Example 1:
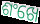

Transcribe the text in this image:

ଶଂଖେ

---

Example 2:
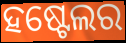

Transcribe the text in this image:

ହଷ୍ଟେଲର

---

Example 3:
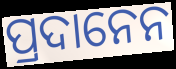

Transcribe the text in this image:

ପ୍ରଦାନେନ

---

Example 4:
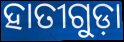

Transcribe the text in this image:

ହାତୀଗୁଡ଼ା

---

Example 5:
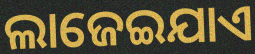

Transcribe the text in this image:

ଲାଜେଇଯାଏ